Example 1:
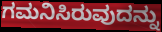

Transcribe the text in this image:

ಗಮನಿಸಿರುವುದನ್ನು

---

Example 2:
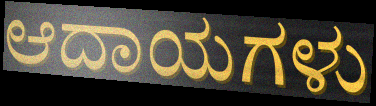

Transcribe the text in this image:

ಆದಾಯಗಳು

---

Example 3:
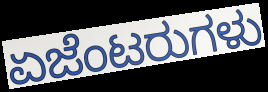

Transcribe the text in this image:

ಏಜೆಂಟರುಗಳು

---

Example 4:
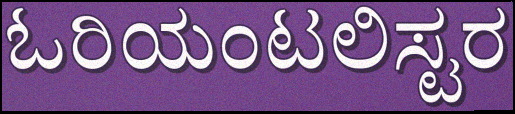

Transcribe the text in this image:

ಓರಿಯಂಟಲಿಸ್ಟರ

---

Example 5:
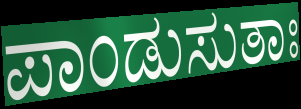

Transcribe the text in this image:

ಪಾಂಡುಸುತಾಃ